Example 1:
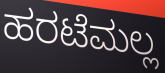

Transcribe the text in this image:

ಹರಟೆಮಲ್ಲ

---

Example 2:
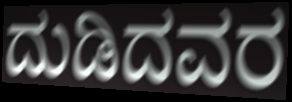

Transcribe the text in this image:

ದುಡಿದವರ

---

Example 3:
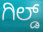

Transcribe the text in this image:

ಗಿಲ್ಡ್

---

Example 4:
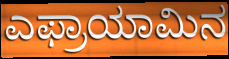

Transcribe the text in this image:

ಎಫ್ರಾಯಾಮಿನ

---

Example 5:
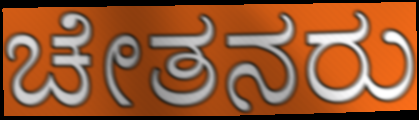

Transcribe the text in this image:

ಚೇತನರು